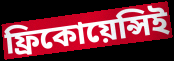
ফ্রিকোয়েন্সিই